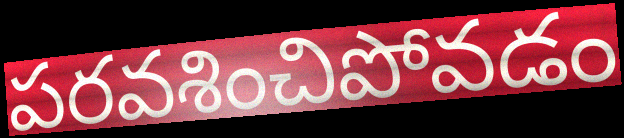
పరవశించిపోవడం